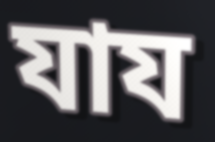
যায